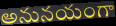
అనునయంగా